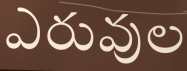
ఎరువుల